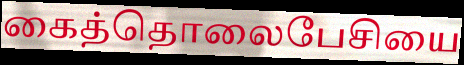
கைத்தொலைபேசியை